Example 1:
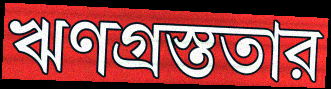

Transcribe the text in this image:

ঋণগ্রস্ততার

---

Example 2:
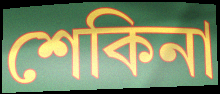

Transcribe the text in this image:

শেকিনা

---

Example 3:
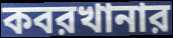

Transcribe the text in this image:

কবরখানার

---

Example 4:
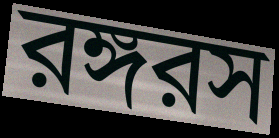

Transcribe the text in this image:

রঙ্গরস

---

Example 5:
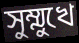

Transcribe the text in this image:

সুম্মুখে